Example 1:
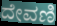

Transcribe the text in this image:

ದೇವಣಿ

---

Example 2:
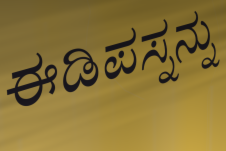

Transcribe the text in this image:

ಈಡಿಪಸ್ನನ್ನು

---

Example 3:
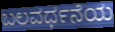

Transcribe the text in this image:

ಬಲವರ್ಧನೆಯ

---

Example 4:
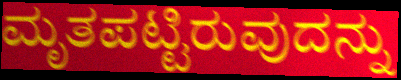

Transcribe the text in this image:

ಮೃತಪಟ್ಟಿರುವುದನ್ನು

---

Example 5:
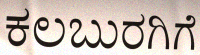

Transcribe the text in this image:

ಕಲಬುರಗಿಗೆ